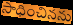
సాధించినను